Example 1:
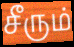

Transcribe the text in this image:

சீரும்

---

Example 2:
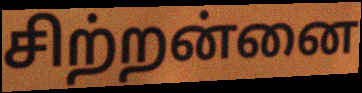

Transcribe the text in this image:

சிற்றன்னை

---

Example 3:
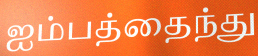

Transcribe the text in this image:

ஐம்பத்தைந்து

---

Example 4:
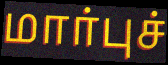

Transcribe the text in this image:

மார்புச்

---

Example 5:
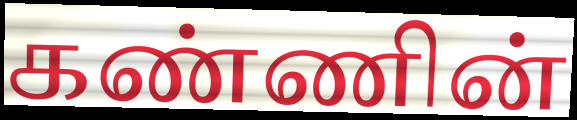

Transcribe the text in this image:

கண்ணின்